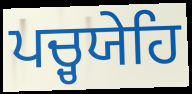
ਪਚ੍ਚਯੇਹਿ